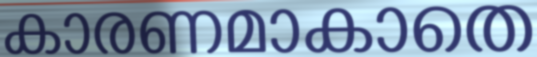
കാരണമാകാതെ